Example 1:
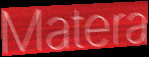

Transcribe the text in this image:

Matera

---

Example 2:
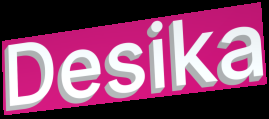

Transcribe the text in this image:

Desika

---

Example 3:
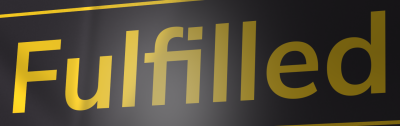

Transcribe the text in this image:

Fulfilled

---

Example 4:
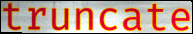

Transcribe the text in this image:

truncate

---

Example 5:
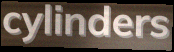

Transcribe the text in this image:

cylinders